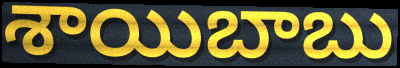
శాయిబాబు